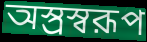
অস্ত্রস্বরূপ